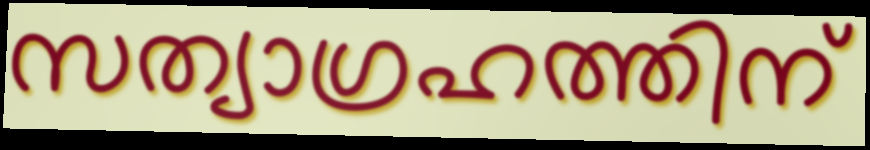
സത്യാഗ്രഹത്തിന്